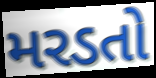
મરડતો